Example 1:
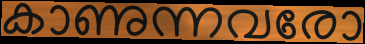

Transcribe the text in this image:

കാണുന്നവരോ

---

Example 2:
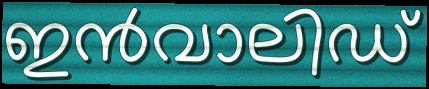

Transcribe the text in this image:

ഇൻവാലിഡ്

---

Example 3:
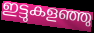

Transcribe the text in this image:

ഇട്ടുകളഞ്ഞു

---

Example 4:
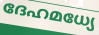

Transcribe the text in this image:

ദേഹമധ്യേ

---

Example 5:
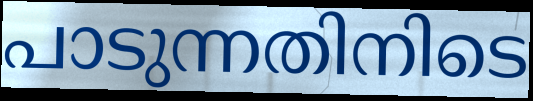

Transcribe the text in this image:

പാടുന്നതിനിടെ